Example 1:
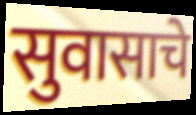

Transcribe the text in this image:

सुवासाचे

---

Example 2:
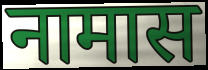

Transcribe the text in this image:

नामास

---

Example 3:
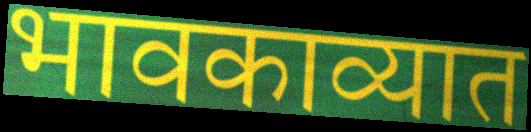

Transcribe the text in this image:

भावकाव्यात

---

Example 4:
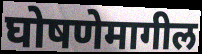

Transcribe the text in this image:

घोषणेमागील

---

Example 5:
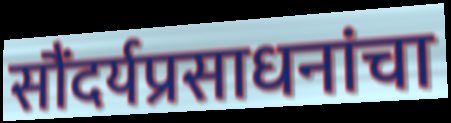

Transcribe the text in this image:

सौंदर्यप्रसाधनांचा